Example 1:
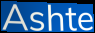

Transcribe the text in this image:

Ashte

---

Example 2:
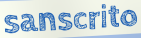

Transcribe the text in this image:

sanscrito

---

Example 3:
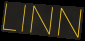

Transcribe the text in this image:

LINN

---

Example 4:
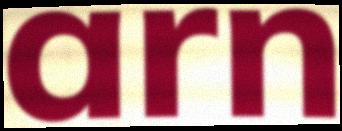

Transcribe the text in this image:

arn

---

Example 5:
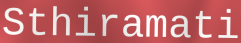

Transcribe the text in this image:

Sthiramati